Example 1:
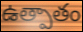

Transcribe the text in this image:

ఉత్పాతం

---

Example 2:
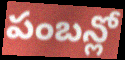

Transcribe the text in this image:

పంబన్లో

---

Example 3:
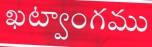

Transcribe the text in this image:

ఖట్వాంగము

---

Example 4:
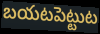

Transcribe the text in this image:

బయటపెట్టుట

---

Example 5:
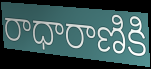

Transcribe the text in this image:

రాధారాణికి